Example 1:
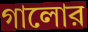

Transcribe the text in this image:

গালোর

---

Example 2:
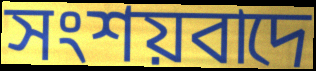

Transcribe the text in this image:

সংশয়বাদে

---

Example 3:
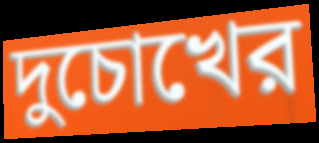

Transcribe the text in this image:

দুচোখের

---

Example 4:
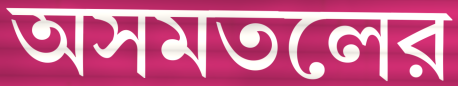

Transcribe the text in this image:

অসমতলের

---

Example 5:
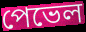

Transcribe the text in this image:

পেভেল